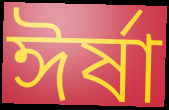
ঈর্ষা